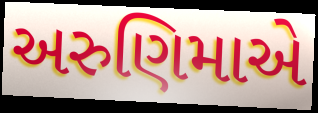
અરુણિમાએ